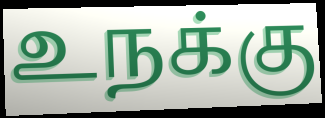
உநக்கு